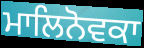
ਮਾਲਿਨੋਵਕਾ